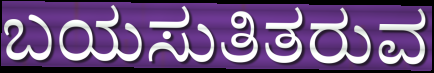
ಬಯಸುತಿತರುವ